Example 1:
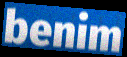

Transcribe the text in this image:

benim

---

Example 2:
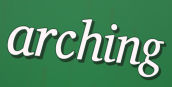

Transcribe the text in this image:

arching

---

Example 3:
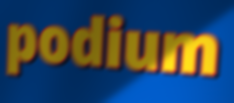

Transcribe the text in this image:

podium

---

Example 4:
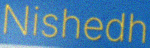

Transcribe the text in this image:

Nishedh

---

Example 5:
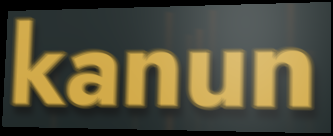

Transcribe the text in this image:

kanun